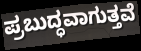
ಪ್ರಬುದ್ಧವಾಗುತ್ತವೆ